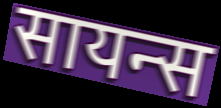
सायन्स